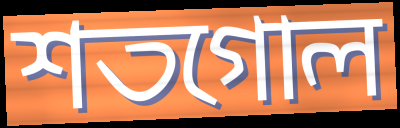
শতগোল